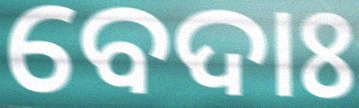
ବେଦାଃ